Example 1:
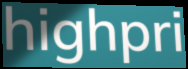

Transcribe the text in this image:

highpri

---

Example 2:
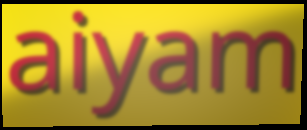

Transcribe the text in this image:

aiyam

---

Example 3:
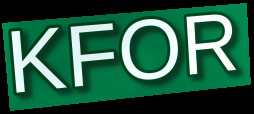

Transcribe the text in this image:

KFOR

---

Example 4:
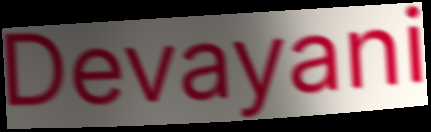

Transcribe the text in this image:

Devayani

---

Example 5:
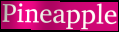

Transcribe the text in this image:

Pineapple